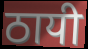
ठायी